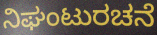
ನಿಘಂಟುರಚನೆ